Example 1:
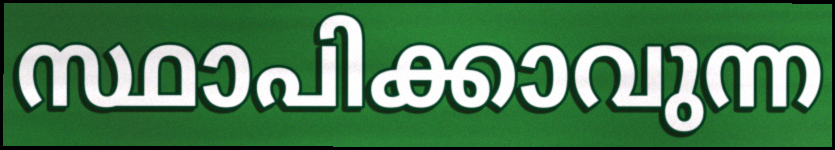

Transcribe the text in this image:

സ്ഥാപിക്കാവുന്ന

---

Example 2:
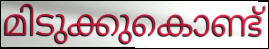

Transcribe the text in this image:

മിടുക്കുകൊണ്ട്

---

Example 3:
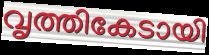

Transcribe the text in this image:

വൃത്തികേടായി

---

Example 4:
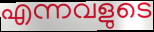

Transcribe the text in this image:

എന്നവളുടെ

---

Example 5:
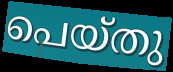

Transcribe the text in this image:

പെയ്തു